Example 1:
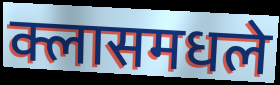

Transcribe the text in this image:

क्लासमधले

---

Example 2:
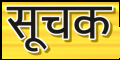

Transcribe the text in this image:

सूचक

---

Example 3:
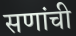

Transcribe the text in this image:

सणांची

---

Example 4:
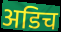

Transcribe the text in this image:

अडिच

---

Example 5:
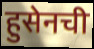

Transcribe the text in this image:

हुसेनची